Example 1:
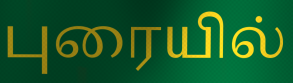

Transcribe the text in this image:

புரையில்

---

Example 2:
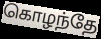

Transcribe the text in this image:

கொழந்தே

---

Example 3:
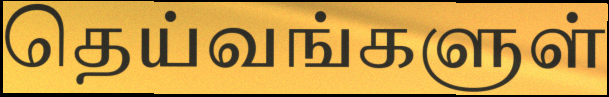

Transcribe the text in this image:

தெய்வங்களுள்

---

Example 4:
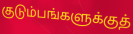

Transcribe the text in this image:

குடும்பங்களுக்குத்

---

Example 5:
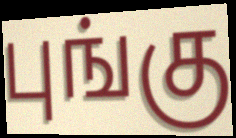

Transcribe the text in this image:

புங்கு